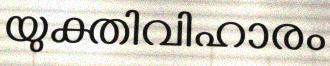
യുക്തിവിഹാരം